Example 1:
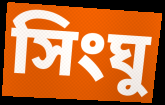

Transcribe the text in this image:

সিংঘু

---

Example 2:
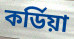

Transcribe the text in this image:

কর্ডিয়া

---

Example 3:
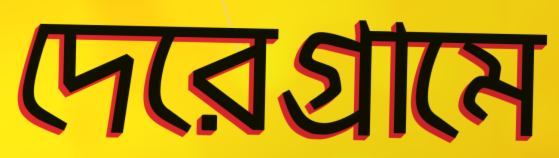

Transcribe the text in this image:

দেরেগ্রামে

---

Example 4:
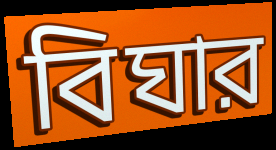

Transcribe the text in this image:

বিঘার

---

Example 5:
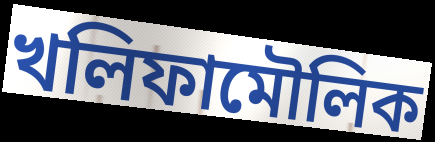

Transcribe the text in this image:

খলিফামৌলিক